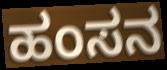
ಹಂಸನ